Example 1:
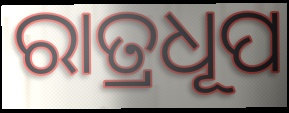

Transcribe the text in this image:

ରାତ୍ରଧୂପ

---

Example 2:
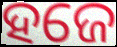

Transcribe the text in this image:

ହଜେ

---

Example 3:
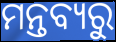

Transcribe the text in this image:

ମନ୍ତବ୍ୟରୁ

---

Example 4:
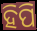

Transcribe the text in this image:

ହିପି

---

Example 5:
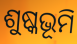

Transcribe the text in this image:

ଶୁଷ୍କଭୂମି